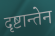
दृष्टान्तेन